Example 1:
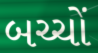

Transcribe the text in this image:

બચ્ચોં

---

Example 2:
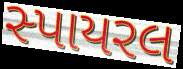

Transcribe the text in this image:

સ્પાયરલ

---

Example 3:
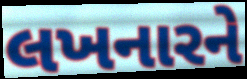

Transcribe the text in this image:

લખનારને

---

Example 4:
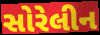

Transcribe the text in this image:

સોરેલીન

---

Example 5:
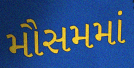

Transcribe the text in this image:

મૌસમમાં